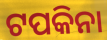
ଟପକିନା